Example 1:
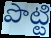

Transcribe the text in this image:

పొట్టి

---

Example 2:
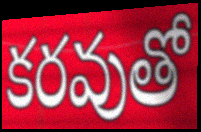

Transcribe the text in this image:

కరవుతో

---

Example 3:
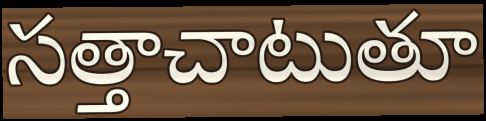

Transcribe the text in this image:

సత్తాచాటుతూ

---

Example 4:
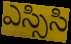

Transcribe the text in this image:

ఎస్సిసి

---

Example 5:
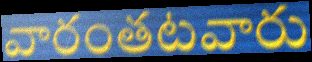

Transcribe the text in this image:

వారంతటవారు